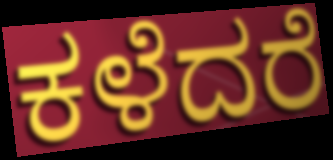
ಕಳೆದರೆ